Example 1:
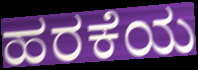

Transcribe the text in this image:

ಹರಕೆಯ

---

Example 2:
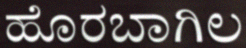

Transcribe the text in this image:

ಹೊರಬಾಗಿಲ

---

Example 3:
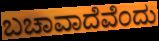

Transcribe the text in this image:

ಬಚಾವಾದೆವೆಂದು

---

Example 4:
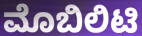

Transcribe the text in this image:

ಮೊಬಿಲಿಟಿ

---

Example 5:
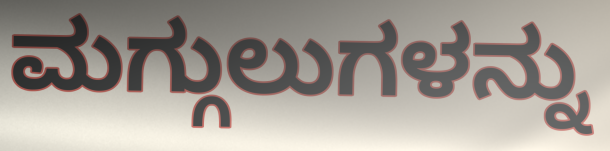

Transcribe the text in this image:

ಮಗ್ಗುಲುಗಳನ್ನು